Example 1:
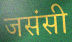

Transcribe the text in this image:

जसंसी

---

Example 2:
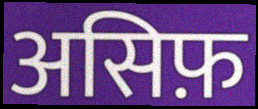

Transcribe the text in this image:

असिफ़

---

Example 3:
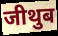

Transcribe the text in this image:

जीथुब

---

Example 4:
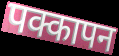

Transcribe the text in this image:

पक्कापन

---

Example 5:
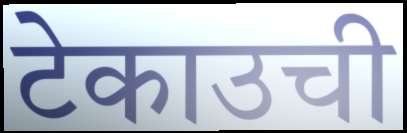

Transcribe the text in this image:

टेकाउची